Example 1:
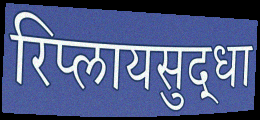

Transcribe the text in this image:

रिप्लायसुद्धा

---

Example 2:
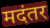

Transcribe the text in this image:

मदंतर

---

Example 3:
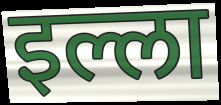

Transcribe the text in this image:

इल्ला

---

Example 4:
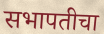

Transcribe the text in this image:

सभापतीचा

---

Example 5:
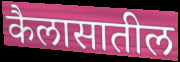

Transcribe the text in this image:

कैलासातील